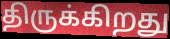
திருக்கிறது